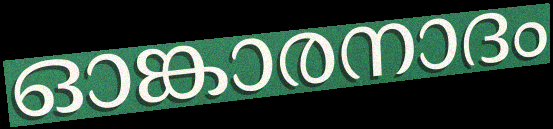
ഓങ്കാരനാദം